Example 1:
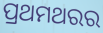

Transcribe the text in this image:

ପ୍ରଥମଥରର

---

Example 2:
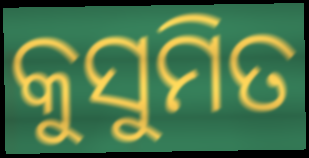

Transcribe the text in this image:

କୁସୁମିତ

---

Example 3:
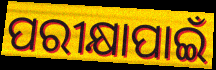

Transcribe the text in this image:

ପରୀକ୍ଷାପାଇଁ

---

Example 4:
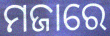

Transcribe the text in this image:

ମଜାରେ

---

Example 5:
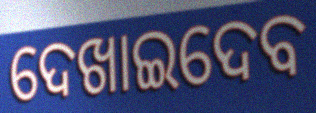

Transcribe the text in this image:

ଦେଖାଇଦେବ